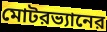
মোটরভ্যানের